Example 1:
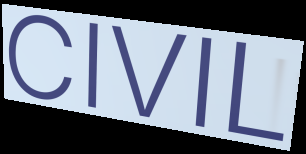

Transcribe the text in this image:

CIVIL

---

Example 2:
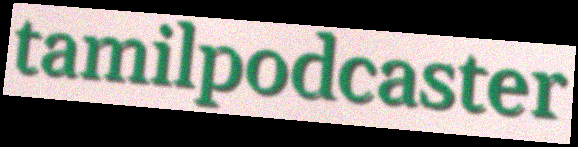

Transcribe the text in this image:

tamilpodcaster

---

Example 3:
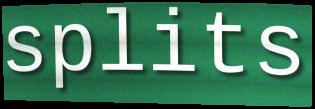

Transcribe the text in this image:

splits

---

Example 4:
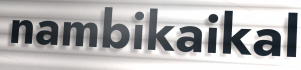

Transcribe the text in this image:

nambikaikal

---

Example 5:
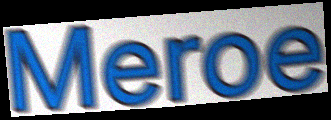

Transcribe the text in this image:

Meroe